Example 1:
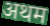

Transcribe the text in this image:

अथम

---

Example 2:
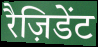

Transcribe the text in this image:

रैज़िडेंट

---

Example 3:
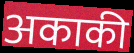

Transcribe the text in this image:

अकाकी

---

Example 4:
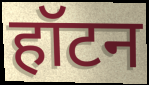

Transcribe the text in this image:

हॉटन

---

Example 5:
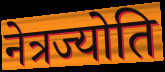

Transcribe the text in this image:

नेत्रज्योति